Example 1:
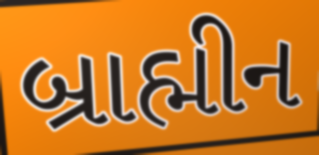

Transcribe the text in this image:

બ્રાહ્મીન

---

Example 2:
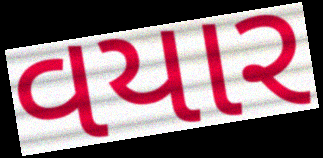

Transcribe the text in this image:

વયાર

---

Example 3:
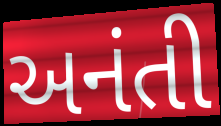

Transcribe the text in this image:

અનંતી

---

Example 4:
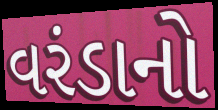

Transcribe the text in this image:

વરંડાનો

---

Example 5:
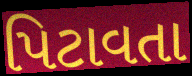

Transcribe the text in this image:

પિટાવતા